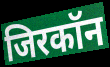
जिरकॉन